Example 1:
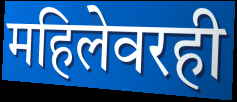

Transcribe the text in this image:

महिलेवरही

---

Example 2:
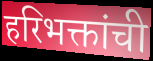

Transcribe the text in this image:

हरिभक्तांची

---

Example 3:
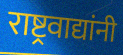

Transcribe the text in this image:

राष्ट्रवाद्यांनी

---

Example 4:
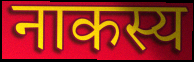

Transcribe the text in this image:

नाकस्य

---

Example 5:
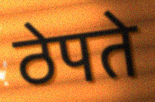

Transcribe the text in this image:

ठेपते